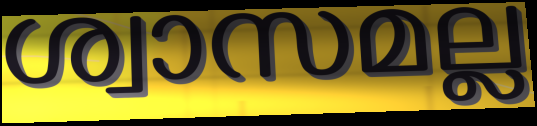
ശ്വാസമല്ല